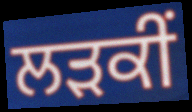
ਲੜਕੀਂ